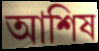
আশিষ